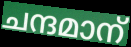
ചന്ദമാന്